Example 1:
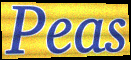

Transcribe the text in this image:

Peas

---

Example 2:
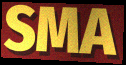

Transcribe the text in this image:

SMA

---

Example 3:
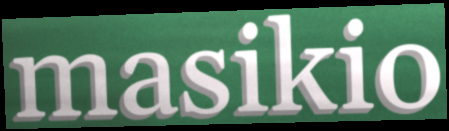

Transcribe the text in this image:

masikio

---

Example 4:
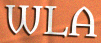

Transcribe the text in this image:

WLA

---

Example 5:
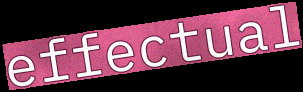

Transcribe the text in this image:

effectual